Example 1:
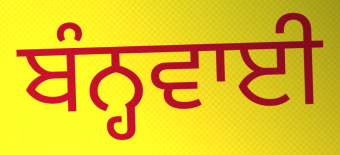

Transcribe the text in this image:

ਬੰਨ੍ਹਵਾਈ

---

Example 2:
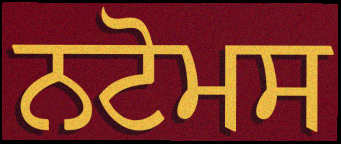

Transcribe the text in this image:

ਨਟੋਮਸ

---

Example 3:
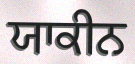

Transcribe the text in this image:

ਯਾਕੀਨ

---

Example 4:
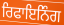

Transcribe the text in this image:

ਰਿਫਾਇਨਿੰਗ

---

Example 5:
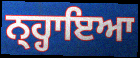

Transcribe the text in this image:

ਨ੍ਹ੍ਹਾਇਆ